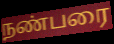
நண்பரை